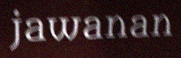
jawanan